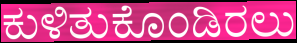
ಕುಳಿತುಕೊಂಡಿರಲು